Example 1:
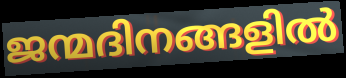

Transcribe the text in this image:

ജന്മദിനങ്ങളിൽ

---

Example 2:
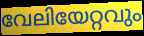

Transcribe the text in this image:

വേലിയേറ്റവും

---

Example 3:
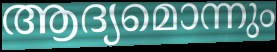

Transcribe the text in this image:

ആദ്യമൊന്നും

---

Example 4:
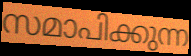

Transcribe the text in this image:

സമാപിക്കുന്ന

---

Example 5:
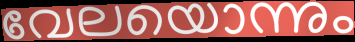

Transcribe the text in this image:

വേലയൊന്നും